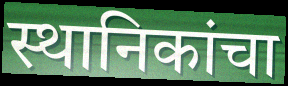
स्थानिकांचा